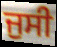
ਜੁਸੀ